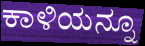
ಕಾಳಿಯನ್ನೂ